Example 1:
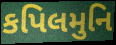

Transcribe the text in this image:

કપિલમુનિ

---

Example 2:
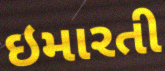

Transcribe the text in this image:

ઇમારતી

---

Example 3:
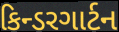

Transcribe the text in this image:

કિન્ડરગાર્ટન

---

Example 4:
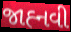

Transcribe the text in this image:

જાહ્‍નવી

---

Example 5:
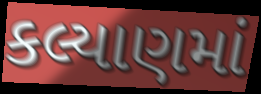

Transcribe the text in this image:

કલ્યાણમાં